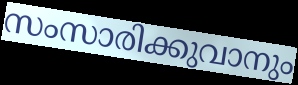
സംസാരിക്കുവാനും